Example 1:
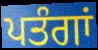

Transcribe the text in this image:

ਪਤੰਗਾਂ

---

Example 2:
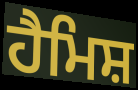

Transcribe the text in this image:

ਹੈਮਿਸ਼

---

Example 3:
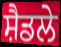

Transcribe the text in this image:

ਸ਼ੈਡਲੇ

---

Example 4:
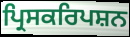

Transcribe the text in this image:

ਪ੍ਰਿਸਕਰਿਪਸ਼ਨ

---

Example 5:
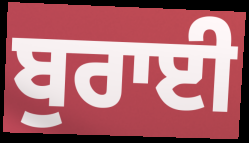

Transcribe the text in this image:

ਬੁਰਾਈ